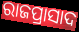
ରାଜପ୍ରାସାଦ